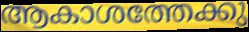
ആകാശത്തേക്കു